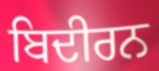
ਬਿਦੀਰਨ